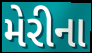
મેરીના